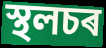
স্থলচৰ